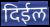
दिईल